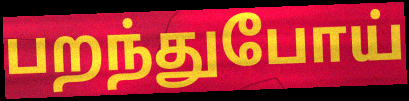
பறந்துபோய்